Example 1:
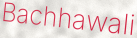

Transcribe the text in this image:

Bachhawali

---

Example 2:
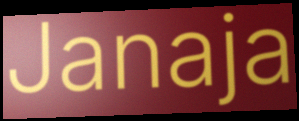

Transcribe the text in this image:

Janaja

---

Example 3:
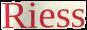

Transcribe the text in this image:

Riess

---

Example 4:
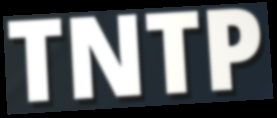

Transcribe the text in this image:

TNTP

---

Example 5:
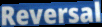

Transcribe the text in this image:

Reversal